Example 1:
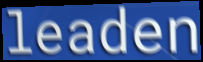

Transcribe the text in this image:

leaden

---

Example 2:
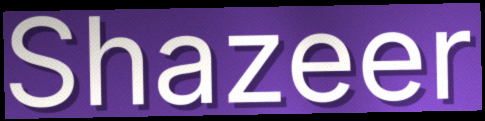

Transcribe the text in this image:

Shazeer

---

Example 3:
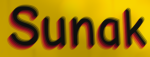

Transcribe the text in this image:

Sunak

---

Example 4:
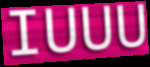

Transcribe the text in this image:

IUUU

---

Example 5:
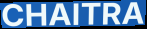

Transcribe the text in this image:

CHAITRA